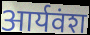
आर्यवंश